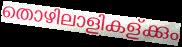
തൊഴിലാളികള്ക്കും